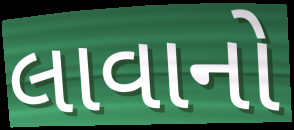
લાવાનો